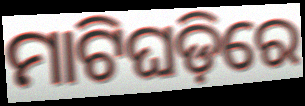
ମାଟିଘଡ଼ିରେ